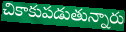
చికాకుపడుతున్నారు